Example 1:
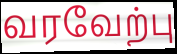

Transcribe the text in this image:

வரவேற்பு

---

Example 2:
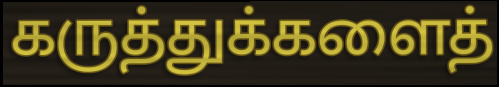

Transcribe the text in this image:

கருத்துக்களைத்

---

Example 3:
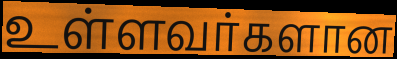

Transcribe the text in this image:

உள்ளவர்களான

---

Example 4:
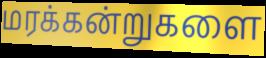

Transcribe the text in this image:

மரக்கன்றுகளை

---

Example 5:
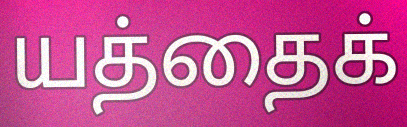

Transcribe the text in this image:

யத்தைக்